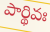
పార్థివః